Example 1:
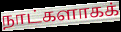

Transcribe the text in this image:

நாட்களாகக்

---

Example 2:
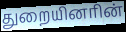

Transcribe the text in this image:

துறையினரின்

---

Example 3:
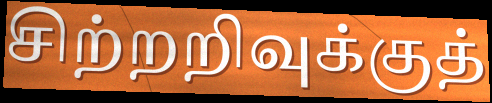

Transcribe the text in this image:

சிற்றறிவுக்குத்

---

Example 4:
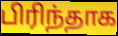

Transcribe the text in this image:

பிரிந்தாக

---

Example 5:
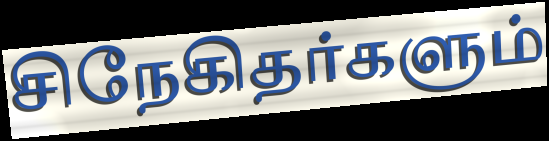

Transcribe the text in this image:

சிநேகிதர்களும்